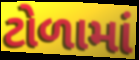
ટોળામાં